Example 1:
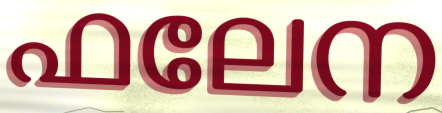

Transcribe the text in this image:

ഫലേന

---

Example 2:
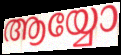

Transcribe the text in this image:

ആയ്യോ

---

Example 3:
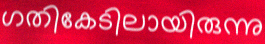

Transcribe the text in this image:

ഗതികേടിലായിരുന്നു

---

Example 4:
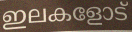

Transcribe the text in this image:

ഇലകളോട്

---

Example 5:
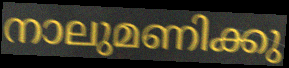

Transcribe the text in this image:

നാലുമണിക്കു